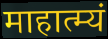
माहात्म्यं